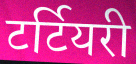
टर्टियरी